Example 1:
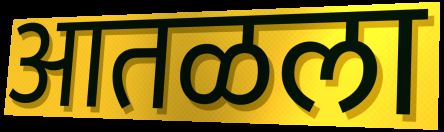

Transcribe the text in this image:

आतळला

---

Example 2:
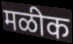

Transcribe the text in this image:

मळीक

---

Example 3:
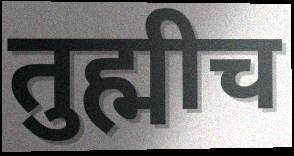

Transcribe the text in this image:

तुह्मीच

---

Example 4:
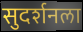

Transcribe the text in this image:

सुदर्शनला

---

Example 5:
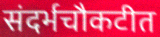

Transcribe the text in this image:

संदर्भचौकटीत